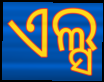
ଏଲ୍ସ